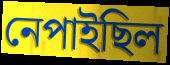
নেপাইছিল